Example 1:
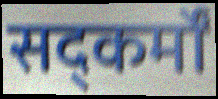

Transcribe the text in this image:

सद्कर्मों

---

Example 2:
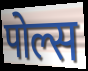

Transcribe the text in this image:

पोल्‍स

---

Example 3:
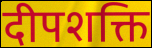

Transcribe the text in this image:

दीपशक्ति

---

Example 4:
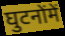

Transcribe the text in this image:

घुटनोंमें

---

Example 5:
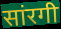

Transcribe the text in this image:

सांरगी